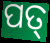
ପତ୍